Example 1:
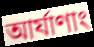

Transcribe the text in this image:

আর্যাণাং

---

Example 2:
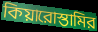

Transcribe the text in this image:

কিয়ারোস্তামির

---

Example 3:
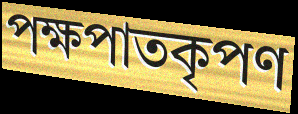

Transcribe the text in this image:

পক্ষপাতকৃপণ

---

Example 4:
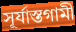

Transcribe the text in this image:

সূর্যাস্তগামী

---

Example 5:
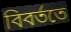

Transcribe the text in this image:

বিবর্ততে